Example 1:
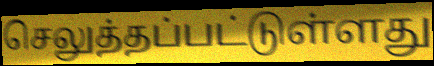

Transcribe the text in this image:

செலுத்தப்பட்டுள்ளது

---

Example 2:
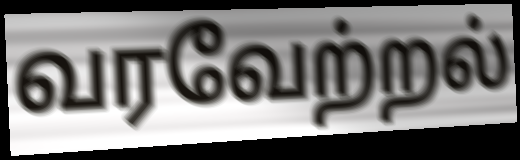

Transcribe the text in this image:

வரவேற்றல்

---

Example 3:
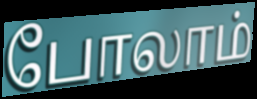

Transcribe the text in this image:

போலாம்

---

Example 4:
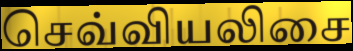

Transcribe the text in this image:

செவ்வியலிசை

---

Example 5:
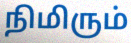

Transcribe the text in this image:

நிமிரும்